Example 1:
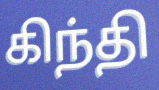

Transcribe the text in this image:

கிந்தி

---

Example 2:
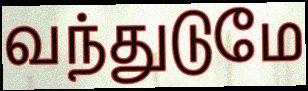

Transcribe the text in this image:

வந்துடுமே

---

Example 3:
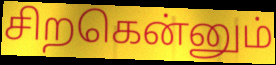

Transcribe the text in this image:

சிறகென்னும்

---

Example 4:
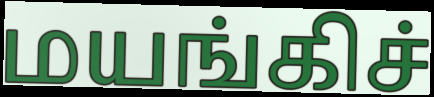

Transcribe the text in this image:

மயங்கிச்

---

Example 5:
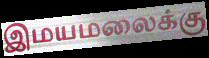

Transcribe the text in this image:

இமயமலைக்கு